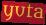
yuta